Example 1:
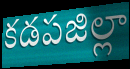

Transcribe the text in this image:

కడపజిల్లా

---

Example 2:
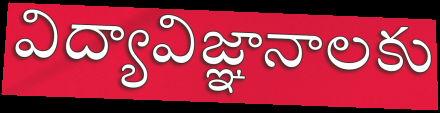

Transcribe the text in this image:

విద్యావిజ్ఞానాలకు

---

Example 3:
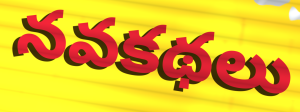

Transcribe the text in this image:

నవకథలు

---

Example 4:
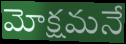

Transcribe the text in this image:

మోక్షమనే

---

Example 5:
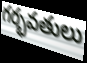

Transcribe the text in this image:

గర్భవతులు